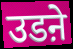
उडऩे